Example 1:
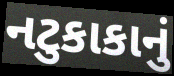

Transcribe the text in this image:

નટુકાકાનું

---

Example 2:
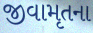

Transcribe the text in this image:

જીવામૃતના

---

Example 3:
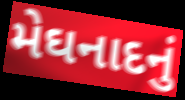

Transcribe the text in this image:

મેઘનાદનું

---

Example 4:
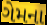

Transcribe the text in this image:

ગેમના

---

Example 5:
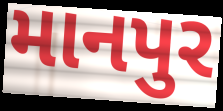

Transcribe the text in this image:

માનપુર